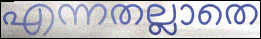
എന്നതല്ലാതെ